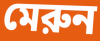
মেরুন